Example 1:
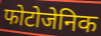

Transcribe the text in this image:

फोटोजेनिक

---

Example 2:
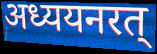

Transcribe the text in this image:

अध्ययनरत्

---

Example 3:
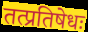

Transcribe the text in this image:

तत्प्रतिषेधः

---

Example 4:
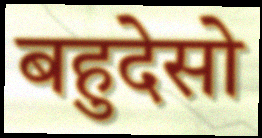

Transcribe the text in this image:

बहुदेसो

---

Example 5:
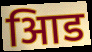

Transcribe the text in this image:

आिड